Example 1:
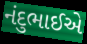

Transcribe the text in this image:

નંદુભાઈએ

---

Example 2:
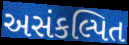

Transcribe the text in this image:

અસંકલ્પિત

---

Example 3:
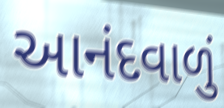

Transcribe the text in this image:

આનંદવાળું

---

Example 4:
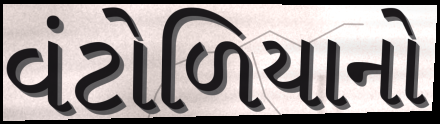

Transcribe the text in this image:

વંટોળિયાનો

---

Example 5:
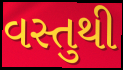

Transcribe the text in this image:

વસ્તુથી